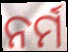
ନର୍ମ